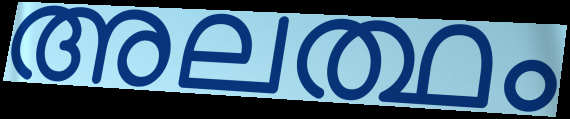
അലത്ഥം